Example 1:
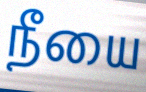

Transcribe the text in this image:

நீயை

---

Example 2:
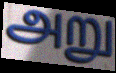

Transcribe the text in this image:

அறு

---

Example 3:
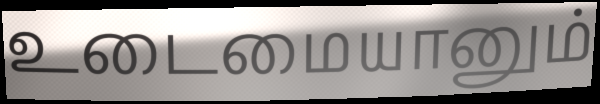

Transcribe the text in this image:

உடைமையானும்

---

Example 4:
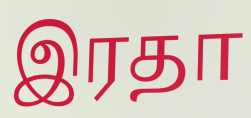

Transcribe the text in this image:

இரதா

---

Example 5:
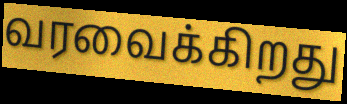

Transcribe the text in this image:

வரவைக்கிறது